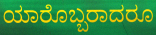
ಯಾರೊಬ್ಬರಾದರೂ